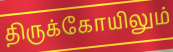
திருக்கோயிலும்